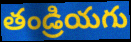
తండ్రియగు